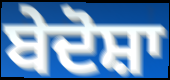
ਬੇਦੋਸ਼ਾ